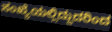
ಸಂಖ್ಯೆಯಲ್ಲಿದ್ದುದರಿಂದ